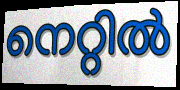
നെറ്റിൽ